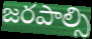
జరపాల్సి